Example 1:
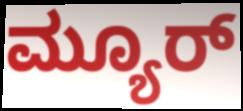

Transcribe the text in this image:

ಮ್ಯೂರ್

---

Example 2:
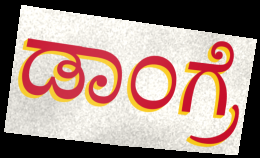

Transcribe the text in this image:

ಡಾಂಗ್ರೆ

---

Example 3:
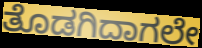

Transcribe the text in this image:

ತೊಡಗಿದಾಗಲೇ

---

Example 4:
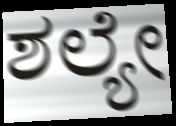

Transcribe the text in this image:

ಶಲ್ಯೇ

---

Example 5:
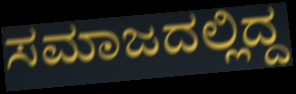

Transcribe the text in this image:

ಸಮಾಜದಲ್ಲಿದ್ದ